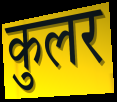
कुलर